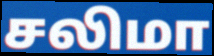
சலிமா